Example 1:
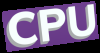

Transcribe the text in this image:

CPU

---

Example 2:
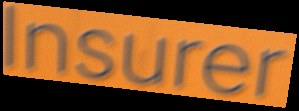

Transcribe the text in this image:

Insurer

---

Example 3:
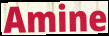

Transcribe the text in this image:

Amine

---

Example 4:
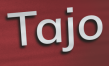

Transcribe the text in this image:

Tajo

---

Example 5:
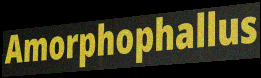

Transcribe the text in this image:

Amorphophallus